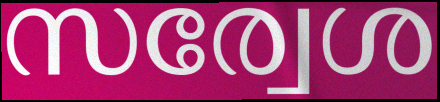
സര്വേശ